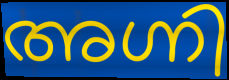
അഗ്നി